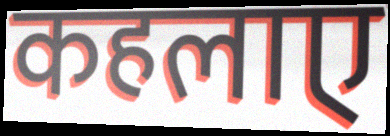
कहलाए